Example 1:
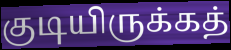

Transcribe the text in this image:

குடியிருக்கத்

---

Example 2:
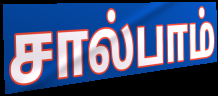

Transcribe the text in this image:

சால்பாம்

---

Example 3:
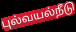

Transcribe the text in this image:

புல்வயல்நீடு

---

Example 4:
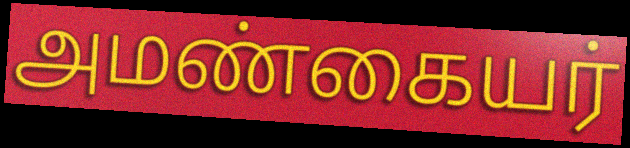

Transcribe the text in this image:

அமண்கையர்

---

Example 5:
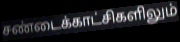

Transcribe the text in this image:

சண்டைக்காட்சிகளிலும்